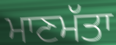
ਮਾਣਮੱਤਾ